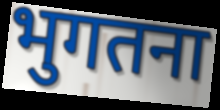
भुगतना